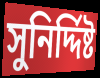
সুনির্দ্দিষ্ট